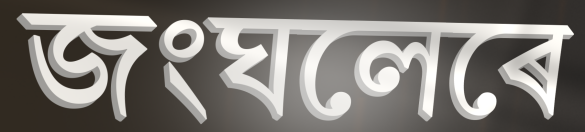
জংঘলেৰে